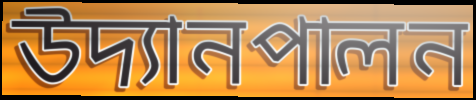
উদ্যানপালন